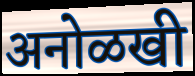
अनोळखी